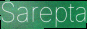
Sarepta